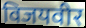
विजयवीर